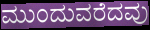
ಮುಂದುವರೆದವು